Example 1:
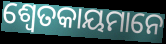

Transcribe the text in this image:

ଶ୍ୱେତକାୟମାନେ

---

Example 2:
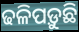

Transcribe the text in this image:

ଢଳିପଡ଼ୁଛି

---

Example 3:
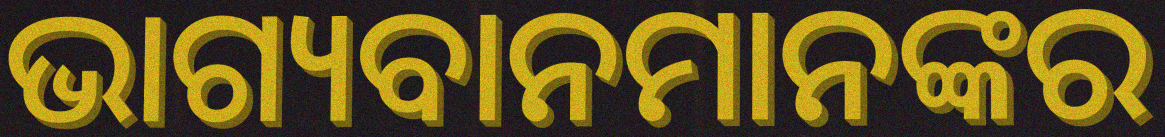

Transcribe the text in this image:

ଭାଗ୍ୟବାନମାନଙ୍କର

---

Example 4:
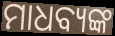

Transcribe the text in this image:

ମାଧବ୍ୟଙ୍କ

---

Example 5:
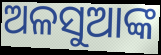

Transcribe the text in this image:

ଅଳସୁଆଙ୍କ